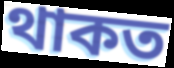
থাকত